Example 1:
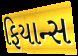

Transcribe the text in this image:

ફિયાન્સ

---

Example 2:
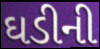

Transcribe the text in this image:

ઘડીની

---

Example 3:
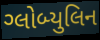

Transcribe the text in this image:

ગ્લોબ્યુલિન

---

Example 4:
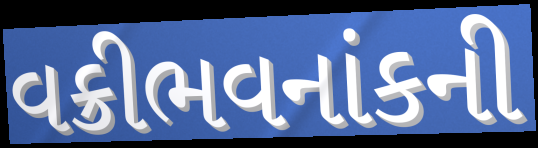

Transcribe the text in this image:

વક્રીભવનાંકની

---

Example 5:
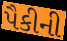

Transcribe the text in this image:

પૈકીની